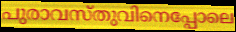
പുരാവസ്തുവിനെപ്പോലെ